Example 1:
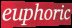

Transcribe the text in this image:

euphoric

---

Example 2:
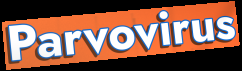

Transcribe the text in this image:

Parvovirus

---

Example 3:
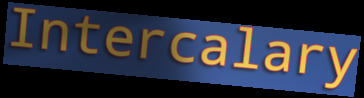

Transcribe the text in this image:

Intercalary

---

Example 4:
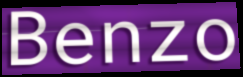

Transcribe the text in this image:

Benzo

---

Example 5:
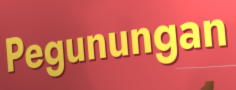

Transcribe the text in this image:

Pegunungan